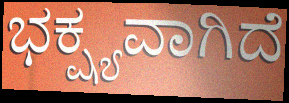
ಭಕ್ಷ್ಯವಾಗಿದೆ